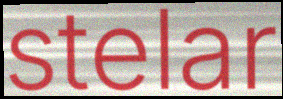
stelar